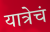
यात्रेचं